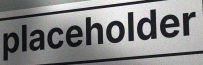
placeholder